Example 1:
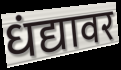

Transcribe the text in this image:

धंद्यावर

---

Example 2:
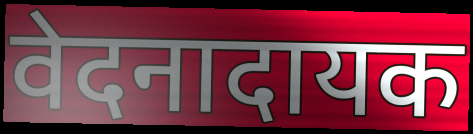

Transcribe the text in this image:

वेदनादायक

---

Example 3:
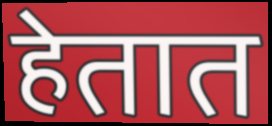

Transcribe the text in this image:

हेतात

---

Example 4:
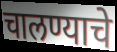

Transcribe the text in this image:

चालण्याचे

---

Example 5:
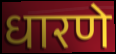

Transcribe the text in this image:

धारणे